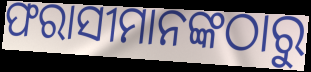
ଫରାସୀମାନଙ୍କଠାରୁ